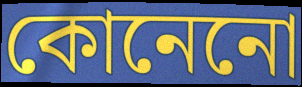
কোনেনো